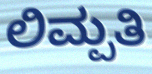
ಲಿಮ್ಪತಿ